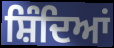
ਸ਼ਿੰਦਿਆਂ